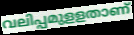
വലിപ്പമുളളതാണ്